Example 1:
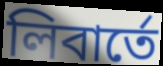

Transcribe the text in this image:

লিবার্তে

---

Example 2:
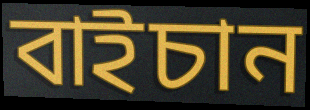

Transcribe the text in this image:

বাইচান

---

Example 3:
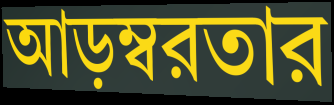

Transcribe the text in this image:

আড়ম্বরতার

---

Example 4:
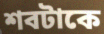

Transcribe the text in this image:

শবটাকে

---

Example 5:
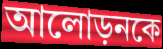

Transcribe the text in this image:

আলোড়নকে